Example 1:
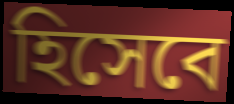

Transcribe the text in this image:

হিসেবে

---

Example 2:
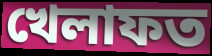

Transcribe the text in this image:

খেলাফত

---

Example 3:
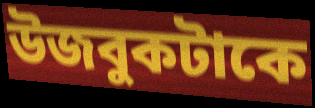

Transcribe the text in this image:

উজবুকটাকে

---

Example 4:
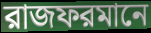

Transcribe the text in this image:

রাজফরমানে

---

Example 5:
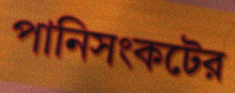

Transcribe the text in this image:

পানিসংকটের